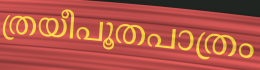
ത്രയീപൂതപാത്രം